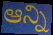
ఆన్ని